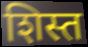
शिस्त